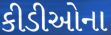
કીડીઓના